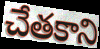
చేతకాని